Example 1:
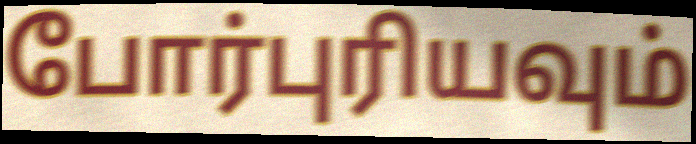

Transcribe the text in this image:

போர்புரியவும்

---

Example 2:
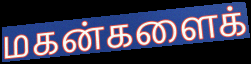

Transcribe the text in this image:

மகன்களைக்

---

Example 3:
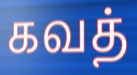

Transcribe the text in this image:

கவத்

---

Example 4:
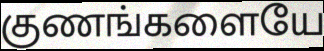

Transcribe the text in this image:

குணங்களையே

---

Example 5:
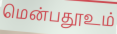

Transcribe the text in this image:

மென்பதூஉம்